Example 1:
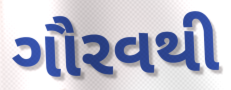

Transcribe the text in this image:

ગૌરવથી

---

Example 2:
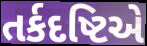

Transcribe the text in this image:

તર્કદષ્ટિએ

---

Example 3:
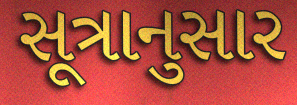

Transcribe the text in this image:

સૂત્રાનુસાર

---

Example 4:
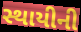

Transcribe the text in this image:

સ્થાયીની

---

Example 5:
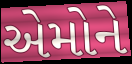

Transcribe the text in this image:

એમોને